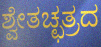
ಶ್ವೇತಚ್ಛತ್ರದ